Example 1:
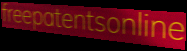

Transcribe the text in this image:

freepatentsonline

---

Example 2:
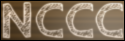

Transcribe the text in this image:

NCCC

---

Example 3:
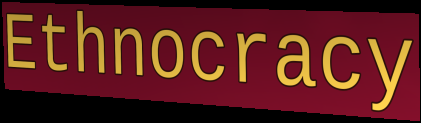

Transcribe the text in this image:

Ethnocracy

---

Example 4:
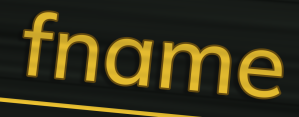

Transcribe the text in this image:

fname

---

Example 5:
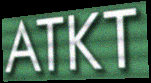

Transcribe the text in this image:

ATKT